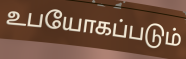
உபயோகப்படும்